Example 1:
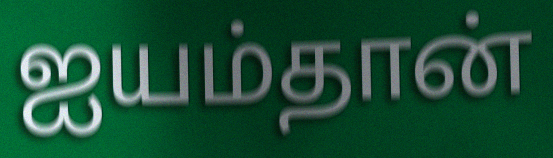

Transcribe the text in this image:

ஐயம்தான்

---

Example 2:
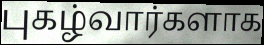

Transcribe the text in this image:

புகழ்வார்களாக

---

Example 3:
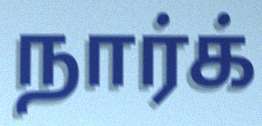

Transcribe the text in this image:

நார்க்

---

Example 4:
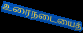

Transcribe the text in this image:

உரைநடையைத்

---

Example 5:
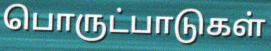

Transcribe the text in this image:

பொருட்பாடுகள்